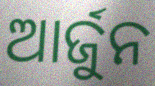
ଆର୍ଜୁନ